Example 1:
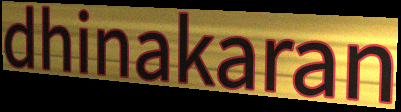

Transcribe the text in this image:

dhinakaran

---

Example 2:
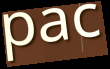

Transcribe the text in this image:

pac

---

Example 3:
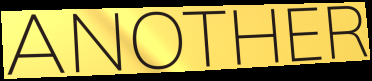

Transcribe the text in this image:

ANOTHER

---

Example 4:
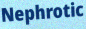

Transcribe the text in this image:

Nephrotic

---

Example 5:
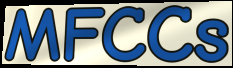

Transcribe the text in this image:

MFCCs